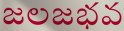
జలజభవ